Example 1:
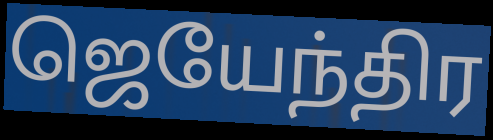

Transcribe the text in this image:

ஜெயேந்திர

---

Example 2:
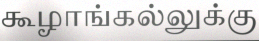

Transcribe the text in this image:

கூழாங்கல்லுக்கு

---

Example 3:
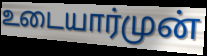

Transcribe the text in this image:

உடையார்முன்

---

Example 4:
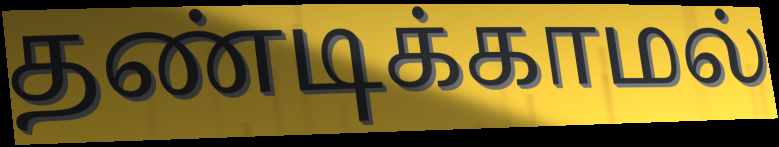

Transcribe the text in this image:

தண்டிக்காமல்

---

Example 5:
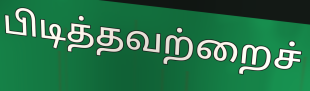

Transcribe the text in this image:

பிடித்தவற்றைச்